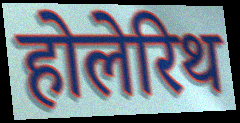
होलेरिथ